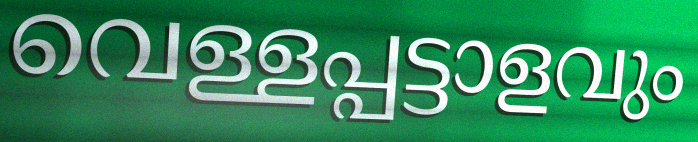
വെള്ളപ്പട്ടാളവും